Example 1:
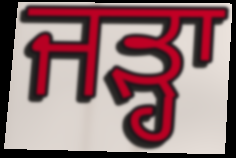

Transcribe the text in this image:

ਜੜ੍ਹਾ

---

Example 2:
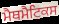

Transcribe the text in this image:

ਮੈਥਮੈਟਿਕਸ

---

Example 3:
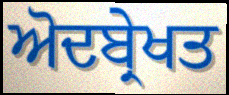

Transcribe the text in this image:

ਅੋਦਬ੍ਰੇਖਤ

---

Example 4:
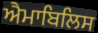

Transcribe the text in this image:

ਐਮਾਬਿਲਿਸ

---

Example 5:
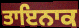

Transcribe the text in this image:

ਤਾਇਨਾਕ